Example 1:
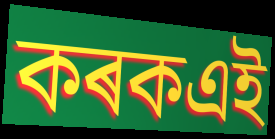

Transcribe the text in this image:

কৰকএই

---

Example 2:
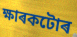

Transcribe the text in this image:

ক্ষাৰকটোৰ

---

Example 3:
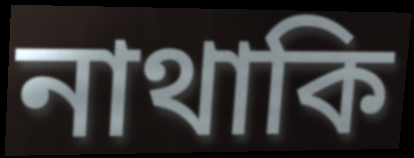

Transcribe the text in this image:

নাথাকি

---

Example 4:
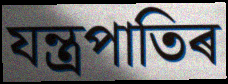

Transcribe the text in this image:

যন্ত্ৰপাতিৰ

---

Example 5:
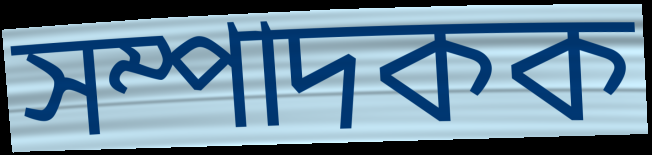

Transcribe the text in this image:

সম্পাদকক